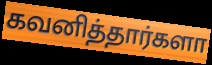
கவனித்தார்களா